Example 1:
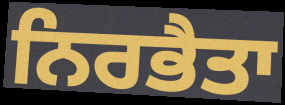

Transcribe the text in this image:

ਨਿਰਭੈਤਾ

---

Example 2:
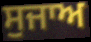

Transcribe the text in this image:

ਸੁਜਾਅ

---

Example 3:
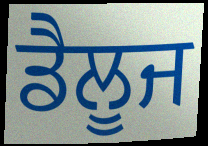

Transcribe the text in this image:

ਡੈਲੂਜ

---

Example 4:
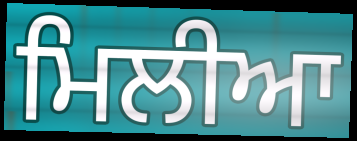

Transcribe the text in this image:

ਮਿਲੀਆ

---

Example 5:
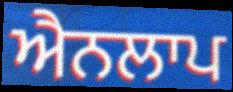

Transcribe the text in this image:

ਐਨਲਾਪ